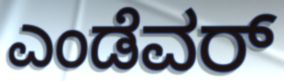
ಎಂಡೆವರ್